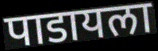
पाडायला